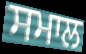
ਸਮਾਲ